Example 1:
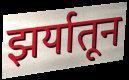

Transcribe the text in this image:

झर्यातून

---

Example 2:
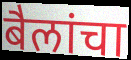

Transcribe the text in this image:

बैलांचा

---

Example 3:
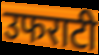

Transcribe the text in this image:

उफराटी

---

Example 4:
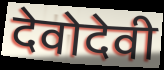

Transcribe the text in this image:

देवोदेवी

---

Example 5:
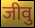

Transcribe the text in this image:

जीवु